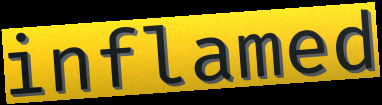
inflamed